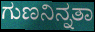
ಗುಣನಿನ್ನತಾ